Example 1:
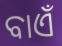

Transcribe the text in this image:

ବାଏଁ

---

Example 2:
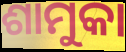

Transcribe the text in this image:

ଶାମୁକା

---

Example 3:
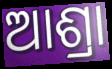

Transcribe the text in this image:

ଆଶ୍ରା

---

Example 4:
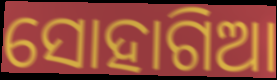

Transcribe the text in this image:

ସୋହାଗିଆ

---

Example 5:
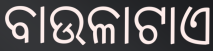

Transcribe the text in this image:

ବାଉଳାଟାଏ